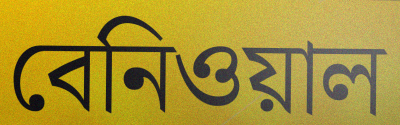
বেনিওয়াল